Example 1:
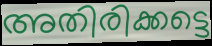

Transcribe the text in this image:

അതിരിക്കട്ടെ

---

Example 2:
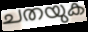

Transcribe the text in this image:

ചതയുക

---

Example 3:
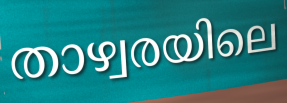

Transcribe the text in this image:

താഴ്വരയിലെ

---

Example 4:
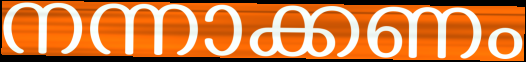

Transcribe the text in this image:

നന്നാക്കണം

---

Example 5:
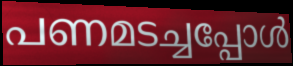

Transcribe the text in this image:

പണമടച്ചപ്പോൾ